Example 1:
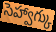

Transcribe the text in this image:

సెహ్వాగ్కు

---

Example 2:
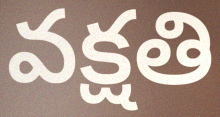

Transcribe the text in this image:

వక్షతి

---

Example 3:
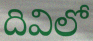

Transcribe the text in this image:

దివిలో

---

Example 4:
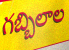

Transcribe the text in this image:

గబ్బిలాల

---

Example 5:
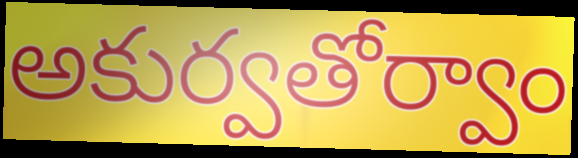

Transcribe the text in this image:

అకుర్వతోర్వాం